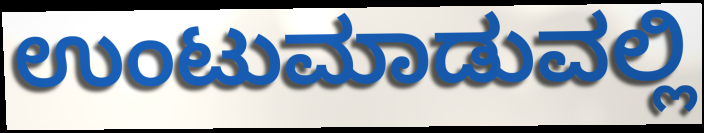
ಉಂಟುಮಾಡುವಲ್ಲಿ